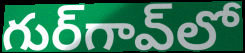
గుర్‌గావ్‌లో